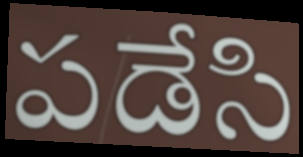
పడేసి